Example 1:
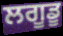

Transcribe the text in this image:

ਲਗੂਡੂ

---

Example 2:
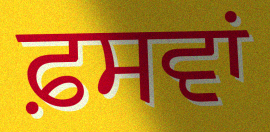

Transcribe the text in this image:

ਫ਼ਸਵਾਂ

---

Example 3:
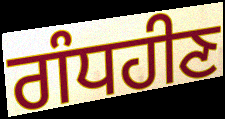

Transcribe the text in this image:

ਗੰਧਹੀਣ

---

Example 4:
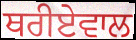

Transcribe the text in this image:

ਥਰੀਏਵਾਲ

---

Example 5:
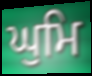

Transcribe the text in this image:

ਘੁਮਿ